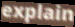
explain